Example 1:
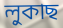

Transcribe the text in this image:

লুকাছ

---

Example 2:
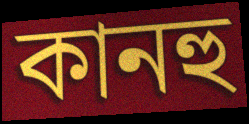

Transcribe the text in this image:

কানহু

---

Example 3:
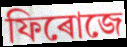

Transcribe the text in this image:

ফিৰোজে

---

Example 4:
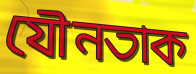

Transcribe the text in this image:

যৌনতাক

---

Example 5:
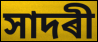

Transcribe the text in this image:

সাদৰী